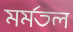
মর্মতল